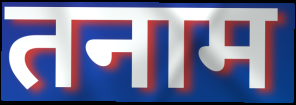
तनाम